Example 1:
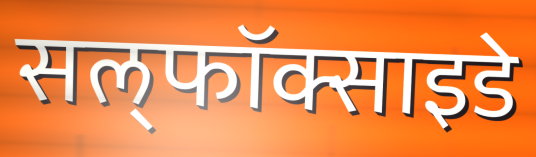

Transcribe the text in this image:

सल्फॉक्साइडे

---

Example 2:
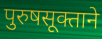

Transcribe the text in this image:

पुरुषसूक्ताने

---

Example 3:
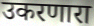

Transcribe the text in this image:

उकरणारा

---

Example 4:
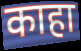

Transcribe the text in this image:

काहा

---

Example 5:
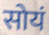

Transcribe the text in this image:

सोयं